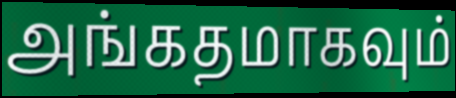
அங்கதமாகவும்